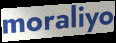
moraliyo